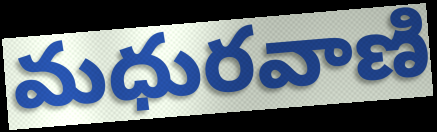
మధురవాణి